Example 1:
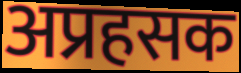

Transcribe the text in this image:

अप्रहसक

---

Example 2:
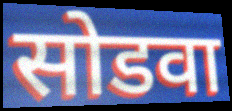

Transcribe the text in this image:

सोडवा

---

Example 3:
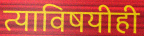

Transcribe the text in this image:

त्याविषयीही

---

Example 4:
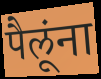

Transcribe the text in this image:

पैलूंना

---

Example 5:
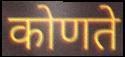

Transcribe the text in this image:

कोणते